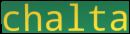
chalta